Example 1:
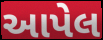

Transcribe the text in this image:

આપેલ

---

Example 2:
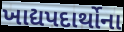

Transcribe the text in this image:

ખાદ્યપદાર્થોના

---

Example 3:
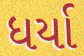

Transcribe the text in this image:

ધર્યા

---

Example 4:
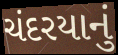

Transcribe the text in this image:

ચંદરયાનું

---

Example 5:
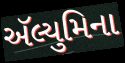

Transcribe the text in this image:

ઍલ્યુમિના